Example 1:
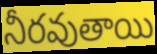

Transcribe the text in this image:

నీరవుతాయి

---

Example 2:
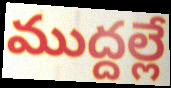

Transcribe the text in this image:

ముద్దల్లే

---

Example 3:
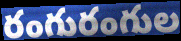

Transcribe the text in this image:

రంగురంగుల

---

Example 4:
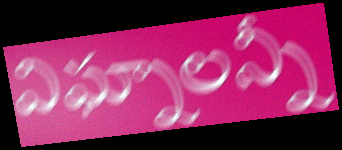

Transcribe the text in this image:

విఘ్నాలన్నీ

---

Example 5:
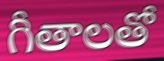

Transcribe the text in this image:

గీతాలతో